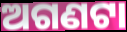
ଅଗଣଟା